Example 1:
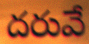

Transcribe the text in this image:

దరువే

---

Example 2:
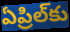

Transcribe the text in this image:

ఏప్రిల్‌కు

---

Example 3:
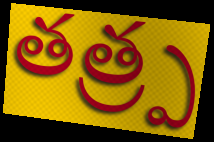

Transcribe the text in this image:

తత్ర్ప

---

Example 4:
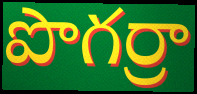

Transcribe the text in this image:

పొగర్రా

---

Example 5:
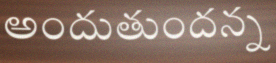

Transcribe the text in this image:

అందుతుందన్న